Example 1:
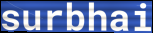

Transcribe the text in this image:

surbhai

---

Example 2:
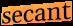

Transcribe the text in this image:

secant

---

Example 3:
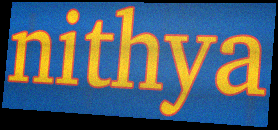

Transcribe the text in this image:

nithya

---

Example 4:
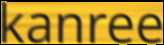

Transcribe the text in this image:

kanree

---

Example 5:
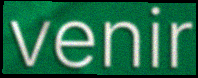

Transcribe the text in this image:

venir